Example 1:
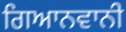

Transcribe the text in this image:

ਗਿਆਨਵਾਨੀ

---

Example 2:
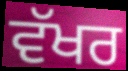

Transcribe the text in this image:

ਵੱਖਰ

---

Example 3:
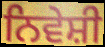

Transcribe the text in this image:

ਨਿਵੇਸ਼ੀ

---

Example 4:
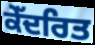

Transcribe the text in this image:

ਕੇੱਦਰਿਤ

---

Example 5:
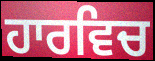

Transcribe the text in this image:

ਹਾਰਵਿਚ